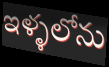
ఇళ్ళలోను